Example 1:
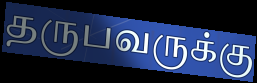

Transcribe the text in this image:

தருபவருக்கு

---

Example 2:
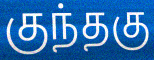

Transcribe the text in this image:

குந்தகு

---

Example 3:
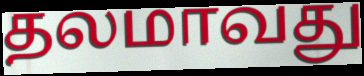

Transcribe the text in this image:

தலமாவது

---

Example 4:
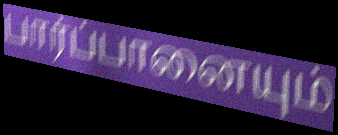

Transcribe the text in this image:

பார்ப்பானையும்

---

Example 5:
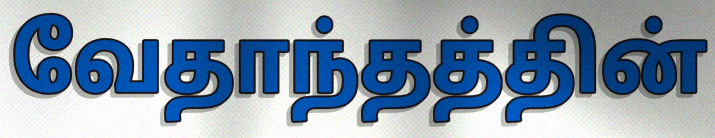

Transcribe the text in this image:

வேதாந்தத்தின்